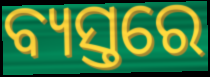
ବ୍ୟସ୍ତରେ